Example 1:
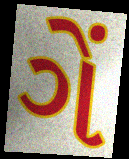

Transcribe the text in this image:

ગેં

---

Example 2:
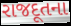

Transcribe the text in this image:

રાજદૂતના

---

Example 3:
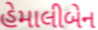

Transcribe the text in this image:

હેમાલીબેન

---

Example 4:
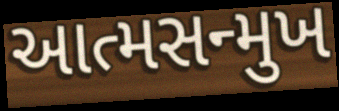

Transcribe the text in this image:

આત્મસન્મુખ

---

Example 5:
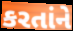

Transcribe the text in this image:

કરતાંને